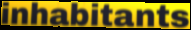
inhabitants